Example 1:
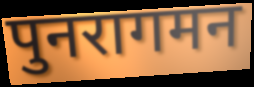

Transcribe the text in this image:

पुनरागमन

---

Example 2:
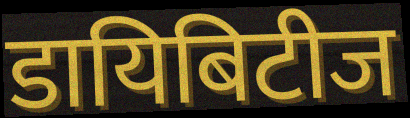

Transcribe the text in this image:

डायिबिटीज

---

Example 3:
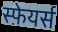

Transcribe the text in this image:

स्फ़ेयर्स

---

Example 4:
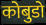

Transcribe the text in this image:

कोबुडो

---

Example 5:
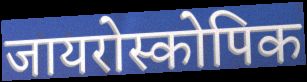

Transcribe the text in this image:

जायरोस्कोपिक